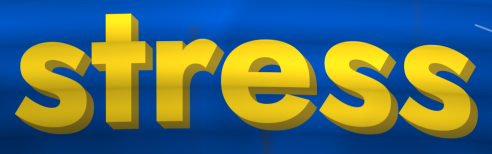
stress